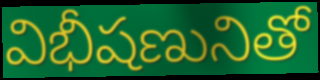
విభీషణునితో